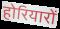
होरियारों